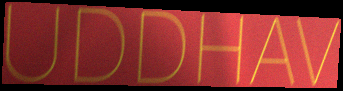
UDDHAV